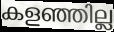
കളഞ്ഞില്ല